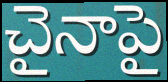
చైనాపై